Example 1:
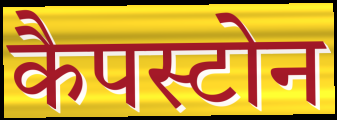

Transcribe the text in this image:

कैपस्टोन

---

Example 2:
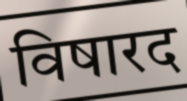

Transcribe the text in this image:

विषारद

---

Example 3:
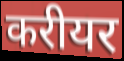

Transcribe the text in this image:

करीयर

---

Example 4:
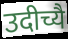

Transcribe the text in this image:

उदीच्यै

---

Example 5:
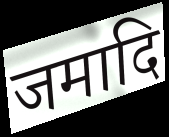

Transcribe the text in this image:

जमादि